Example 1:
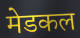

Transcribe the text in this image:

मेडकल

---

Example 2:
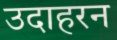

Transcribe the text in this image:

उदाहरन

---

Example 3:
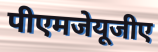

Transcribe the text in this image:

पीएमजेयूजीए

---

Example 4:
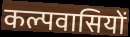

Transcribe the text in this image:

कल्पवासियों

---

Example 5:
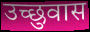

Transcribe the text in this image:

उच्छुवास